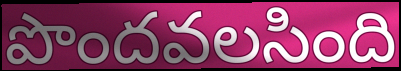
పొందవలసింది